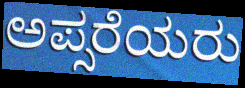
ಅಪ್ಸರೆಯರು